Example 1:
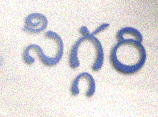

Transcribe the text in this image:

సిగ్గరి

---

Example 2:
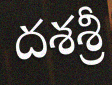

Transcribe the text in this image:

దశశ్రీ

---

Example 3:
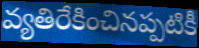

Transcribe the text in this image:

వ్యతిరేకించినప్పటికీ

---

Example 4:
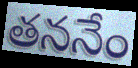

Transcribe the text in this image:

తననేం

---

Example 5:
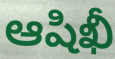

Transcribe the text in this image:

ఆషిఖీ